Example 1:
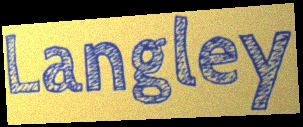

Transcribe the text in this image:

Langley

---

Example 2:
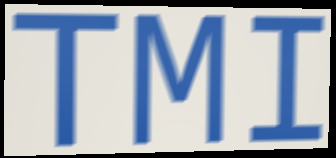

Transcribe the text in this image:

TMI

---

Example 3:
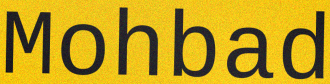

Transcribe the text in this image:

Mohbad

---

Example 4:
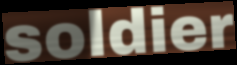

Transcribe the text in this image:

soldier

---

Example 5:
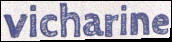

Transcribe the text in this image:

vicharine